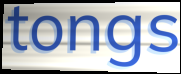
tongs